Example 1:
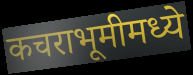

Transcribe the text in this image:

कचराभूमीमध्ये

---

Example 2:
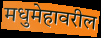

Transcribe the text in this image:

मधुमेहावरील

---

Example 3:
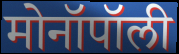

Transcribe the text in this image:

मोनॉपॉली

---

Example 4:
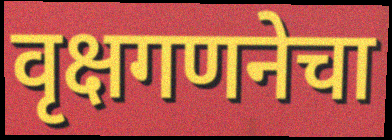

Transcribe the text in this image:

वृक्षगणनेचा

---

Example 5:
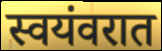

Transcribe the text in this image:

स्वयंवरात